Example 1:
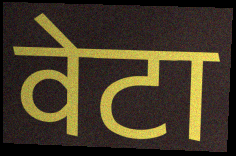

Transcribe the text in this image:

वेटा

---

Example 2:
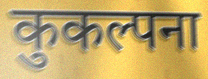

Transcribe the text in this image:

कुकल्पना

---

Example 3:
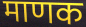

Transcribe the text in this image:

माणक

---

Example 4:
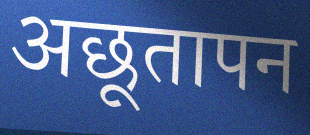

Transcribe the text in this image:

अछूतापन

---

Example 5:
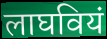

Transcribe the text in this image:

लाघवियं